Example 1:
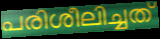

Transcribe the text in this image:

പരിശീലിച്ചത്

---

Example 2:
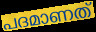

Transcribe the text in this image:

പദമാണത്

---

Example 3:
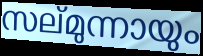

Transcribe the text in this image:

സല്മുന്നായും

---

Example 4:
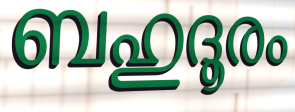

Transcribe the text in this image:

ബഹുദൂരം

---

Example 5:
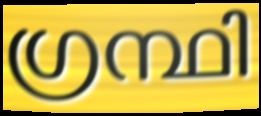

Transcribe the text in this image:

ഗ്രന്ഥി